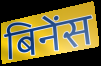
बिनेंस